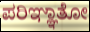
ಪರಿಞ್ಞಾತೋ